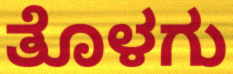
ತೊಳಗು